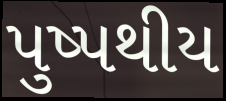
પુષ્પથીય